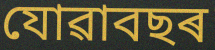
যোৱাবছৰ